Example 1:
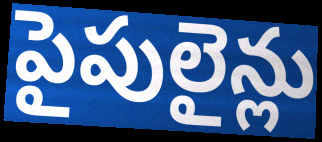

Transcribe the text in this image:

పైపులైన్లు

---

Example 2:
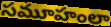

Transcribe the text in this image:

సమూహంలా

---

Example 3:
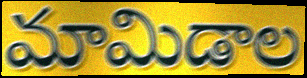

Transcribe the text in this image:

మామిడాల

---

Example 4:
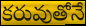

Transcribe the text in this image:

కరువుతోనే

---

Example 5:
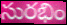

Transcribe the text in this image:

సురభిం